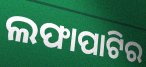
ଲଫାପାଟିର